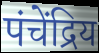
पंचेंद्रिय